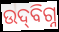
ଉଦ୍‌ବିଗ୍ନ